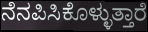
ನೆನಪಿಸಿಕೊಳ್ಳುತ್ತಾರೆ